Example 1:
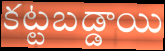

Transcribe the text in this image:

కట్టబడ్డాయి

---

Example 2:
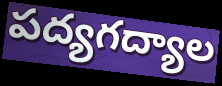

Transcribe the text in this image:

పద్యగద్యాల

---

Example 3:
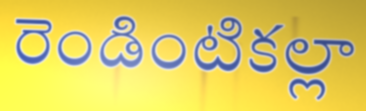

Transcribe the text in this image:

రెండింటికల్లా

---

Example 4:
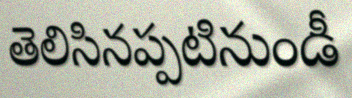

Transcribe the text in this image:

తెలిసినప్పటినుండీ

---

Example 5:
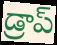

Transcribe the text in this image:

డ్రాప్